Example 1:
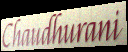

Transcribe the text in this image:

Chaudhurani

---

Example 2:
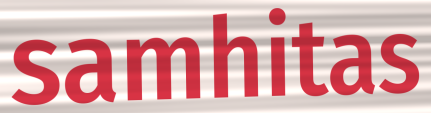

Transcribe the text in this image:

samhitas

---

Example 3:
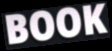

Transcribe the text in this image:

BOOK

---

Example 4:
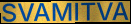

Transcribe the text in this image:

SVAMITVA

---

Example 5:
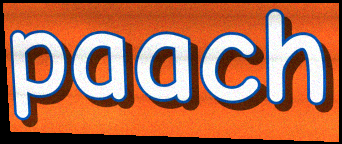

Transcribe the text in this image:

paach